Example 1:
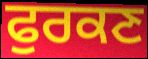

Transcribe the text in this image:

ਫੁਰਕਣ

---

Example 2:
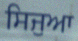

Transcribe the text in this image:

ਸਿਜੁਆ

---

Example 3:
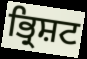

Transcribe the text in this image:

ਭ੍ਰਿਸ਼ਟ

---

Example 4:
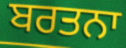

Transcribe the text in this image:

ਬਰਤਨਾ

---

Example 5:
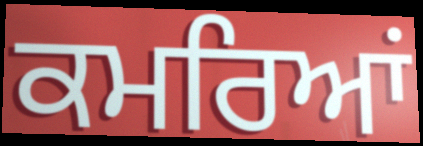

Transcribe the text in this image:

ਕਮਰਿਆਂ